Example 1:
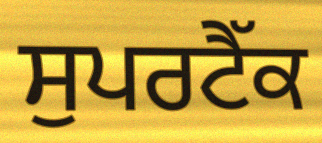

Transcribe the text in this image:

ਸੁਪਰਟੈੱਕ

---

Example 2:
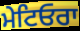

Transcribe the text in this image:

ਮੇਟਿਓਰਾ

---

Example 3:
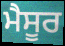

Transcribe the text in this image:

ਮੈਸੂਰ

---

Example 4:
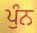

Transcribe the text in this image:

ਪੁੰਨ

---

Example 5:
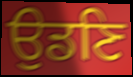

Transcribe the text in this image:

ਉਡਣਿ